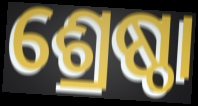
ଶ୍ରେଷ୍ଠା